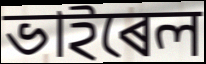
ভাইৰেল